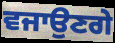
ਵਜਾਉਣਗੇ